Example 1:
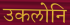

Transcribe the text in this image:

उकलोनि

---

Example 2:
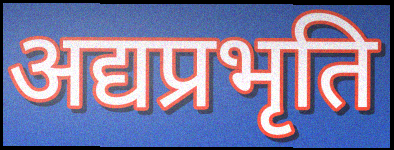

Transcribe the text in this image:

अद्यप्रभृति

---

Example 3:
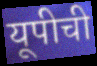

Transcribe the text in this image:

यूपीची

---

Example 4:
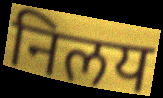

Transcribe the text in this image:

निलय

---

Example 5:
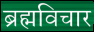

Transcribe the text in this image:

ब्रह्मविचार